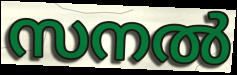
സനൽ